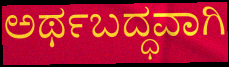
ಅರ್ಥಬದ್ಧವಾಗಿ